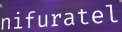
nifuratel